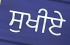
ਸੁਖੀਏ